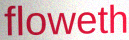
floweth